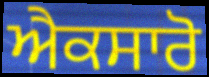
ਐਕਸਾਰੋ